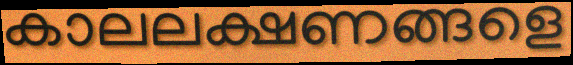
കാലലക്ഷണങ്ങളെ